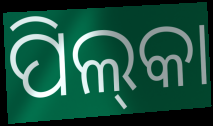
ପିଲ୍‌କା